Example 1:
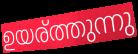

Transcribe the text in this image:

ഉയര്ത്തുന്നു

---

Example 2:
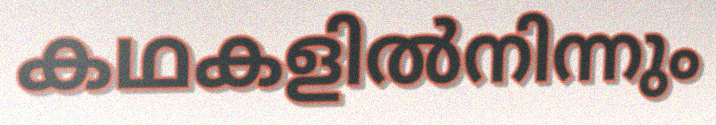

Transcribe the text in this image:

കഥകളിൽനിന്നും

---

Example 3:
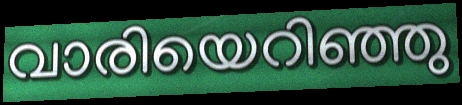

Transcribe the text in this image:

വാരിയെറിഞ്ഞു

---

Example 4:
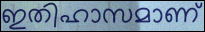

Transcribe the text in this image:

ഇതിഹാസമാണ്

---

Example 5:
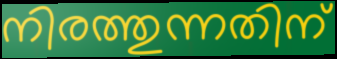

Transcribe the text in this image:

നിരത്തുന്നതിന്